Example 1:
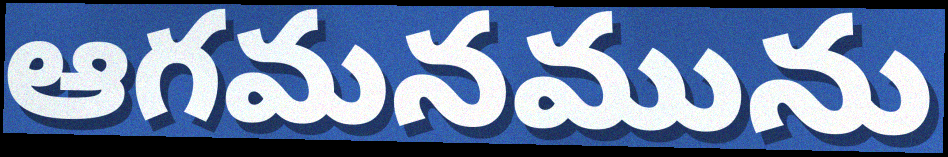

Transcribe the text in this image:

ఆగమనమును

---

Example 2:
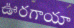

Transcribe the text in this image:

ఊరగాయా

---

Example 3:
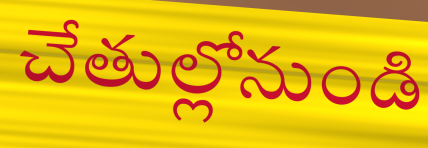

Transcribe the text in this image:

చేతుల్లోనుండి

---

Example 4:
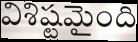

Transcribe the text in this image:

విశిష్టమైంది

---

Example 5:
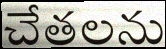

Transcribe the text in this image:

చేతలను